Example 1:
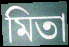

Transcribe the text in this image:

মিতা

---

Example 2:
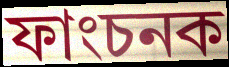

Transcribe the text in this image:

ফাংচনক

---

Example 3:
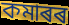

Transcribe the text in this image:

কমাৰৰ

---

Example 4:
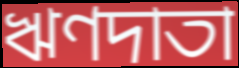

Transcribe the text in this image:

ঋণদাতা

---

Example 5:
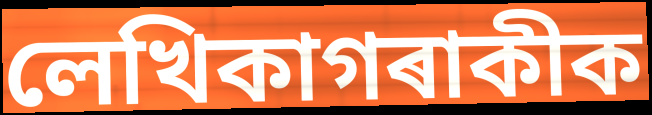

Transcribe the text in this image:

লেখিকাগৰাকীক